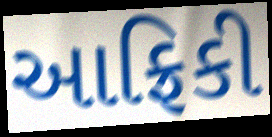
આફ્રિકી